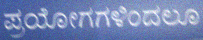
ಪ್ರಯೋಗಗಳಿಂದಲೂ